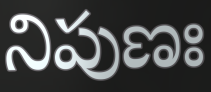
నిపుణః